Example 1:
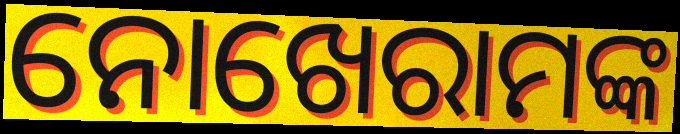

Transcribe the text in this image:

ନୋଖେରାମଙ୍କ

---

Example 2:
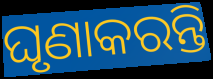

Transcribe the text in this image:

ଘୃଣାକରନ୍ତି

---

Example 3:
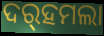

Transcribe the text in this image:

ଦର୍‌ହମଲା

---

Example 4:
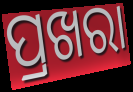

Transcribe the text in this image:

ପ୍ରଖରା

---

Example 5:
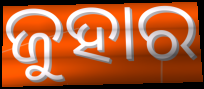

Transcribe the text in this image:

ଜୁହାର